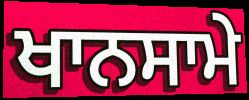
ਖਾਨਸਾਮੇ